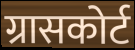
ग्रासकोर्ट